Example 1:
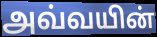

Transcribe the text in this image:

அவ்வயின்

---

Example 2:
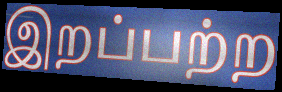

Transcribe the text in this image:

இறப்பற்ற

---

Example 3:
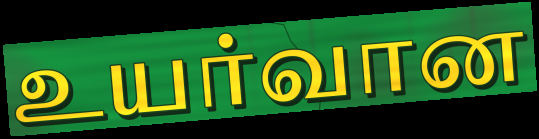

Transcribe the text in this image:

உயர்வான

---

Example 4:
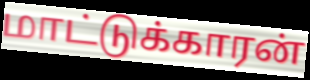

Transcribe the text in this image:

மாட்டுக்காரன்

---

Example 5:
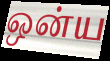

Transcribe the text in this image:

ஒன்ய